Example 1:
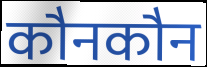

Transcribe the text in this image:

कौनकौन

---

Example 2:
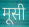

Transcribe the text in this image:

मूसी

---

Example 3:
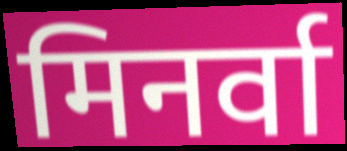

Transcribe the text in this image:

मिनर्वा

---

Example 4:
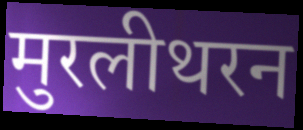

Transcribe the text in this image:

मुरलीथरन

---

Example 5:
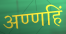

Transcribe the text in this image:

अण्णहिं